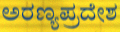
ಅರಣ್ಯಪ್ರದೇಶ